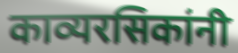
काव्यरसिकांनी